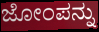
ಜೋಂಪನ್ನು